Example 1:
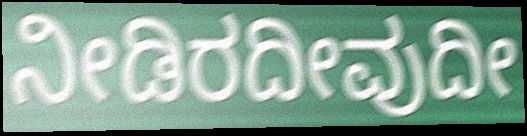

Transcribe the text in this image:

ನೀಡಿರದೀವುದೀ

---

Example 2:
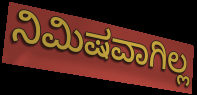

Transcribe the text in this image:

ನಿಮಿಷವಾಗಿಲ್ಲ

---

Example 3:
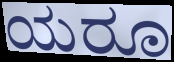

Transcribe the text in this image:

ಯರೂ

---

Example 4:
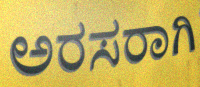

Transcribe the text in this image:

ಅರಸರಾಗಿ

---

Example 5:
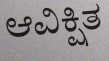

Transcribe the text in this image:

ಆವಿಕ್ಷಿತ